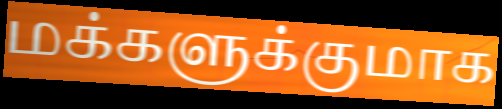
மக்களுக்குமாக